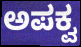
ಅಪಕ್ವ